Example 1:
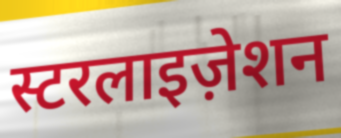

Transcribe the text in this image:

स्टरलाइज़ेशन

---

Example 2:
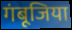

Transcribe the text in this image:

गंबूजिया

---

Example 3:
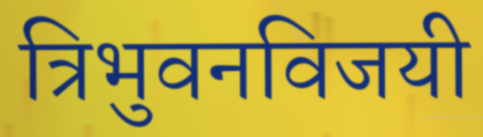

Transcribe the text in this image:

त्रिभुवनविजयी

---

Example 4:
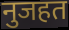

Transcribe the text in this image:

नुजहत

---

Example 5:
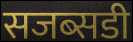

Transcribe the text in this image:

सजब्सडी